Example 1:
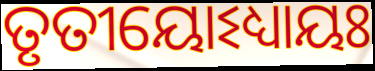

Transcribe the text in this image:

ତୃତୀୟୋଽଧ୍ୟାୟଃ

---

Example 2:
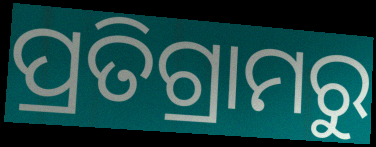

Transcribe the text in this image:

ପ୍ରତିଗ୍ରାମରୁ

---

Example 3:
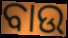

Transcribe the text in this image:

ବାଉ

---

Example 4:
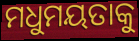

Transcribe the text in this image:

ମଧୁମୟତାକୁ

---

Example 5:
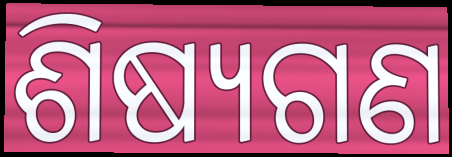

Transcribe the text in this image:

ଶିଷ୍ୟଗଣ